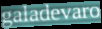
galadevaro